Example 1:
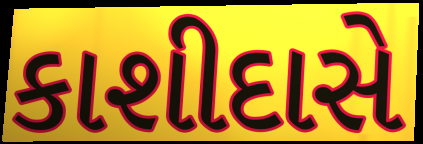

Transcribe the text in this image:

કાશીદાસે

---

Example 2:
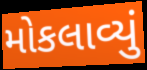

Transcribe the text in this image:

મોકલાવ્યું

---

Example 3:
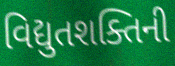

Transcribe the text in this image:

વિદ્યુતશક્તિની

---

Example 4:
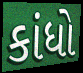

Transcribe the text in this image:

કાંધો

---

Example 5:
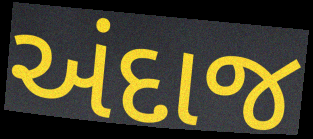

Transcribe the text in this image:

અંદાજ